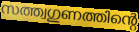
സത്ത്വഗുണത്തിന്റെ